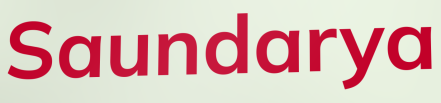
Saundarya